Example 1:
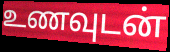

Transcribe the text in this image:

உணவுடன்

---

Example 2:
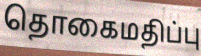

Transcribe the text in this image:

தொகைமதிப்பு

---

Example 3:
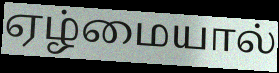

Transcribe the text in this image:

ஏழ்மையால்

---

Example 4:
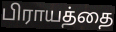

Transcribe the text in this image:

பிராயத்தை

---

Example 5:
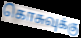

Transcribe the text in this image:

கொசுவுக்கு